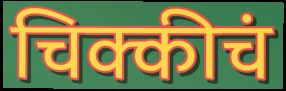
चिक्कीचं